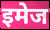
इमेज